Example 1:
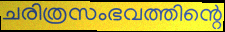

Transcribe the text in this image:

ചരിത്രസംഭവത്തിന്റെ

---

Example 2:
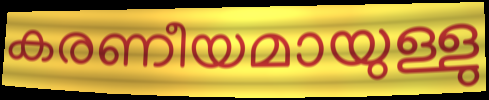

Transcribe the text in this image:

കരണീയമായുള്ളു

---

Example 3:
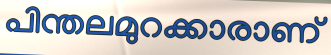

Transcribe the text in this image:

പിന്തലമുറക്കാരാണ്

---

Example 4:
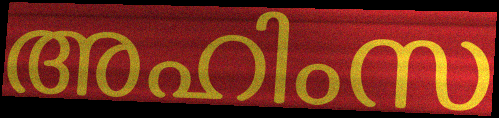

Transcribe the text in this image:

അഹിംസ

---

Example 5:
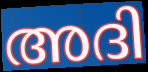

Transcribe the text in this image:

അദി